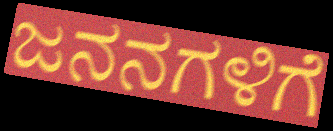
ಜನನಗಳಿಗೆ